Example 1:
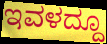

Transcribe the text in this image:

ಇವಳದ್ದೂ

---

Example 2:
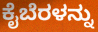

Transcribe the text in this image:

ಕೈಬೆರಳನ್ನು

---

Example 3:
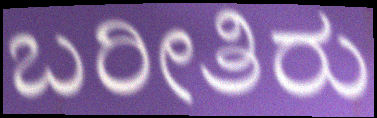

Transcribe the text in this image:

ಬರೀತಿರು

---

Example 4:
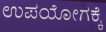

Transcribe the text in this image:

ಉಪಯೋಗಕ್ಕೆ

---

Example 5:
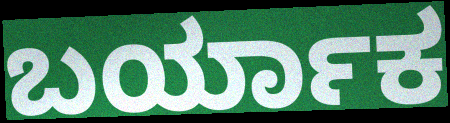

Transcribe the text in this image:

ಬರ್ಯಾಕ